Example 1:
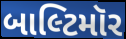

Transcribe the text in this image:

બાલ્ટિમૉર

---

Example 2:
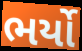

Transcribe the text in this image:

ભર્યો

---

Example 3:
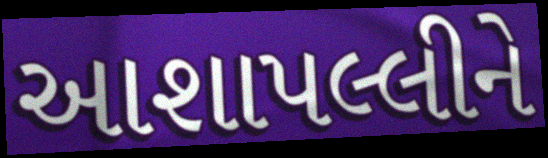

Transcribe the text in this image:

આશાપલ્લીને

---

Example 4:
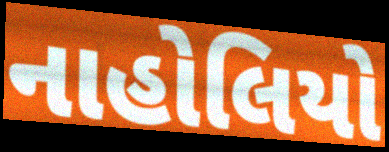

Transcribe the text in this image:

નાહોલિયો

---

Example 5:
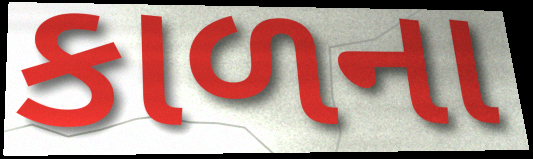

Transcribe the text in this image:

કાળના